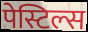
पेस्टिल्स